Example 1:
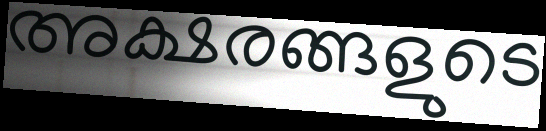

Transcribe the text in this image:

അക്ഷരങ്ങളുടെ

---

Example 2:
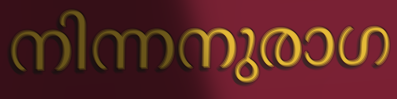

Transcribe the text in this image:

നിന്നനുരാഗ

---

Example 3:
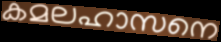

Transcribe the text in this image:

കമലഹാസനെ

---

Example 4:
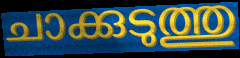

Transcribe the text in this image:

ചാക്കുടുത്തു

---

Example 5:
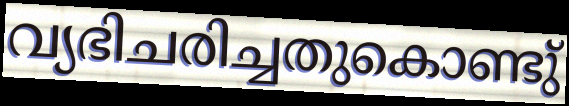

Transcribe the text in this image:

വ്യഭിചരിച്ചതുകൊണ്ടു്